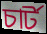
চার্ট